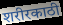
शरीरकाठी